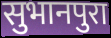
सुभानपुरा